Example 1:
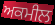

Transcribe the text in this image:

ਅਕਮੀਲ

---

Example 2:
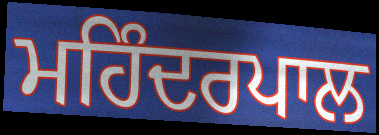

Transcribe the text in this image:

ਮਹਿੰਦਰਪਾਲ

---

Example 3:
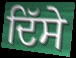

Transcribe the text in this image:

ਦਿੱਸੇ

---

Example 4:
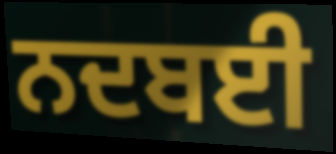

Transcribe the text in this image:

ਨਦਬਈ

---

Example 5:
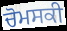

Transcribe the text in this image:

ਚੋਮਸਕੀ